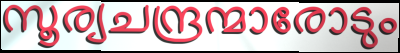
സൂര്യചന്ദ്രന്മാരോടും